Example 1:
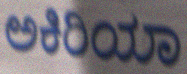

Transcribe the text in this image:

ಅಕಿರಿಯಾ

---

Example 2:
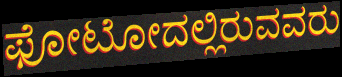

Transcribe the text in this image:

ಫೋಟೋದಲ್ಲಿರುವವರು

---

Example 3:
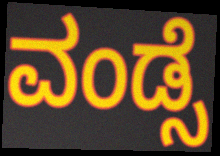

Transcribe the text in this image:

ವಂಡ್ಸೆ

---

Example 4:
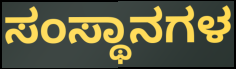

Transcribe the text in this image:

ಸಂಸ್ಥಾನಗಳ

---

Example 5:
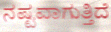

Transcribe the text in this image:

ನಷ್ಟವಾಗುತ್ತಿದೆ